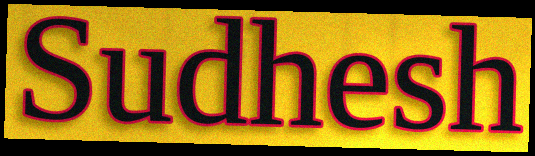
Sudhesh